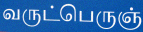
வருட்பெருஞ்